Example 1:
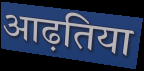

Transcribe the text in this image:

आढ़तिया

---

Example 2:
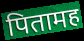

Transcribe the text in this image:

पितामह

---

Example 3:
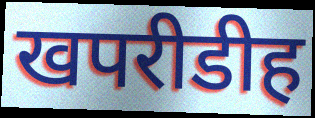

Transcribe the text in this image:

खपरीडीह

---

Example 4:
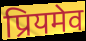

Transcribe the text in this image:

प्रियमेव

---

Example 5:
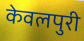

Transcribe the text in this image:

केवलपुरी